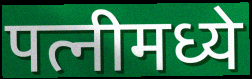
पत्नीमध्ये